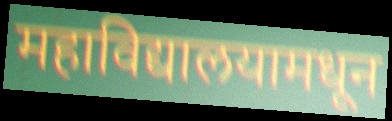
महाविद्यालयामधून